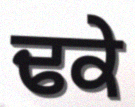
ਢਕੇ